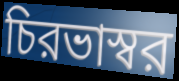
চিরভাস্বর